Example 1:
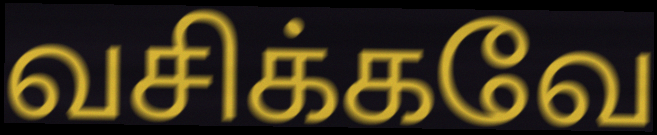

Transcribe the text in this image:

வசிக்கவே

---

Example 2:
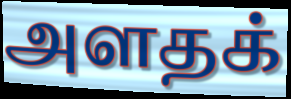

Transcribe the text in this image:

அளதக்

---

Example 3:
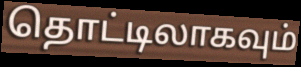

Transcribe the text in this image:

தொட்டிலாகவும்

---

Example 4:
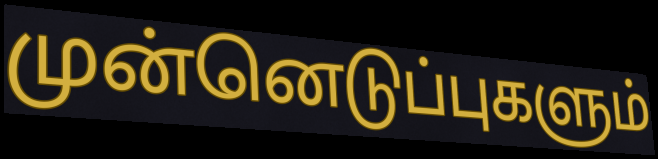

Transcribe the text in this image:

முன்னெடுப்புகளும்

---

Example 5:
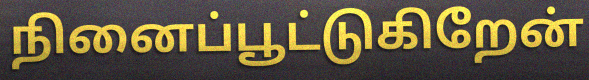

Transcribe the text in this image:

நினைப்பூட்டுகிறேன்